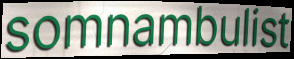
somnambulist